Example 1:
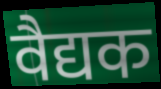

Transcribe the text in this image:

वैद्यक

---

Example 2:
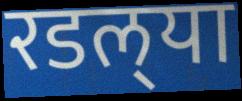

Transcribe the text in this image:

रडल्या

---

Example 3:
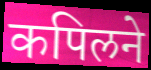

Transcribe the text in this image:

कपिलने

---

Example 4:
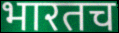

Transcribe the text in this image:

भारतच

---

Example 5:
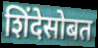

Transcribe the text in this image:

शिंदेसोबत